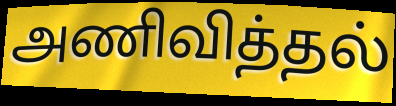
அணிவித்தல்